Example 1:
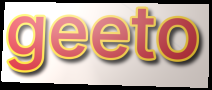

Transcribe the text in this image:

geeto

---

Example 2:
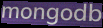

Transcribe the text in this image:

mongodb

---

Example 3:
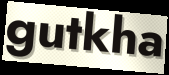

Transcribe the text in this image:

gutkha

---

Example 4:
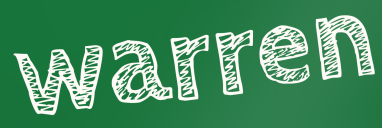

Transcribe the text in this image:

warren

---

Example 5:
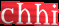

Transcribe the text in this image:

chhi